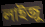
লাইজু